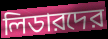
লিডারদের